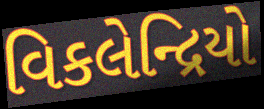
વિકલેન્દ્રિયો